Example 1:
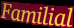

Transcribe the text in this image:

Familial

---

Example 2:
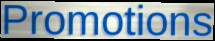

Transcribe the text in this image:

Promotions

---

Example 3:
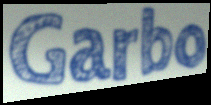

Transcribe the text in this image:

Garbo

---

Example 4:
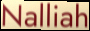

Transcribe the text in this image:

Nalliah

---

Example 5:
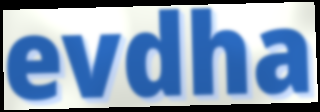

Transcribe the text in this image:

evdha